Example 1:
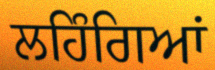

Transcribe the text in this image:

ਲਹਿੰਗਿਆਂ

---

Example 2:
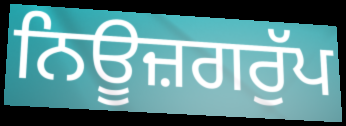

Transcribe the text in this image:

ਨਿਊਜ਼ਗਰੁੱਪ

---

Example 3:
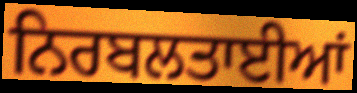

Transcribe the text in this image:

ਨਿਰਬਲਤਾਈਆਂ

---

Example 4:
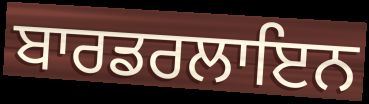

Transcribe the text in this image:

ਬਾਰਡਰਲਾਇਨ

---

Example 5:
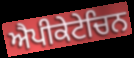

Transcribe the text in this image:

ਐਪੀਕੇਟੇਚਿਨ